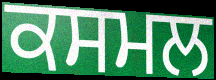
ਕਸਮਲ